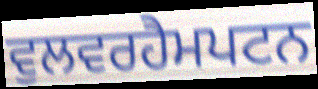
ਵੁਲਵਰਹੈਮਪਟਨ